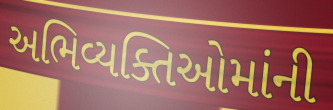
અભિવ્યક્તિઓમાંની